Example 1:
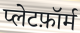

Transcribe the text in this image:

प्लेटफ़ॉर्म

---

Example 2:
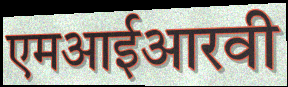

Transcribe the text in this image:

एमआईआरवी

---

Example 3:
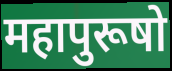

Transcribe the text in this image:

महापुरूषो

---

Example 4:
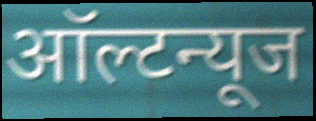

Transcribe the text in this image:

ऑल्टन्यूज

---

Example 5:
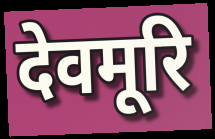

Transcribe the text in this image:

देवमूरि